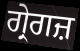
ਗ੍ਰੇਗਜ਼